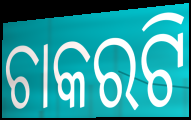
ଚାକରଟି